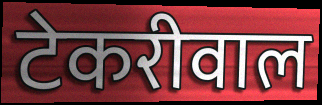
टेकरीवाल